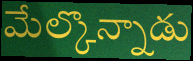
మేల్కొన్నాడు